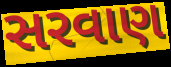
સરવાણ